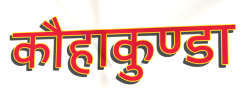
कौहाकुण्डा